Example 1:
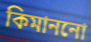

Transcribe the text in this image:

কিমাননো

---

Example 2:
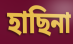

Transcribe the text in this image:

হাছিনা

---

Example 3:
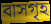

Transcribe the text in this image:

বাসগৃহ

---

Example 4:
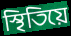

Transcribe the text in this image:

স্থিতিয়ে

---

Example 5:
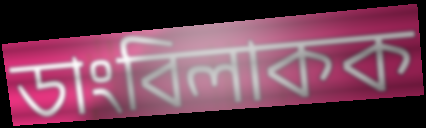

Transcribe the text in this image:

ডাংবিলাকক